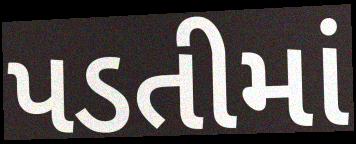
પડતીમાં